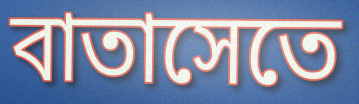
বাতাসেতে